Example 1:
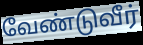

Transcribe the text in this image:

வேண்டுவீர்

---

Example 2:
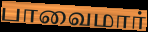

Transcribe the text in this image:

பாவைமார்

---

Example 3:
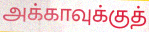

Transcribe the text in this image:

அக்காவுக்குத்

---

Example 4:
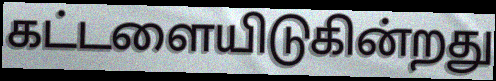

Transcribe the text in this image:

கட்டளையிடுகின்றது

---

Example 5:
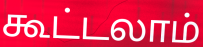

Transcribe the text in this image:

கூட்டலாம்